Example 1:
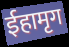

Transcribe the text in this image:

ईहामृग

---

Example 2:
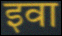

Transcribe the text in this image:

इवा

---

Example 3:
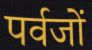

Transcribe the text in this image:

पर्वजों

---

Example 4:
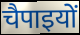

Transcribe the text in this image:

चैपाइयों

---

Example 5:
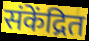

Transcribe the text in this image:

संकेंद्रित